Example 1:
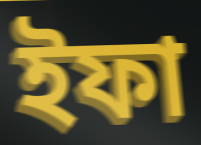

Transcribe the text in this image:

ইফা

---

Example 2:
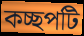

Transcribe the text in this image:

কচ্ছপটি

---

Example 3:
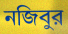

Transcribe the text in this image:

নজিবুর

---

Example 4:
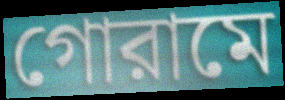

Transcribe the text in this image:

গোরামে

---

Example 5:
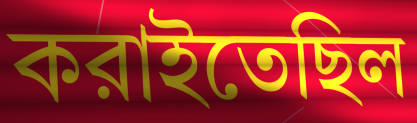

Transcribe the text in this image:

করাইতেছিল